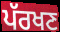
ਪੱਰਖਣ